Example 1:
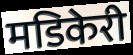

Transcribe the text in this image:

मडिकेरी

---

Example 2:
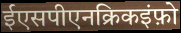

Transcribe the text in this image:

ईएसपीएनक्रिकइंफ़ो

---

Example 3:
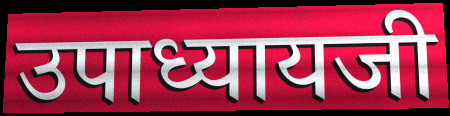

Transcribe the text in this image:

उपाध्यायजी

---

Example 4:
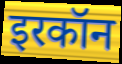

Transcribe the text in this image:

इरकॉन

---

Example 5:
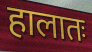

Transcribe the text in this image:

हालातः